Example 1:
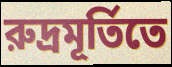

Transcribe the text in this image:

রুদ্রমূর্তিতে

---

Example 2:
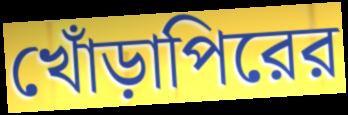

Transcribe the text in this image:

খোঁড়াপিরের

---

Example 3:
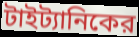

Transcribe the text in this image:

টাইট্যানিকের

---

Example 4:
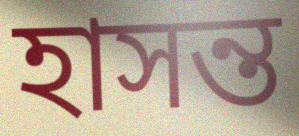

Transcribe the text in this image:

হাসন্ত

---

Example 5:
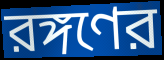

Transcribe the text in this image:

রঙ্গণের